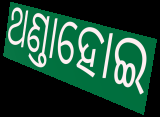
ଥଣ୍ଡାହୋଇ